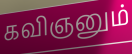
கவிஞனும்